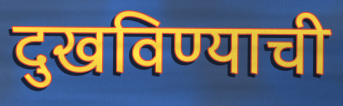
दुखविण्याची